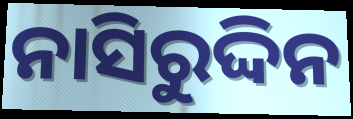
ନାସିରୁଦ୍ଦିନ